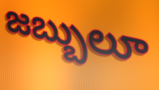
జబ్బులూ